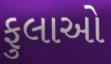
ફુલાઓ